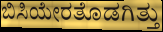
ಬಿಸಿಯೇರತೊಡಗಿತ್ತು